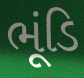
ભૂંડિ